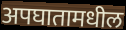
अपघातामधील